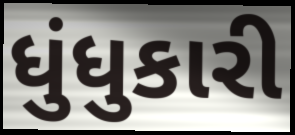
ધુંધુકારી